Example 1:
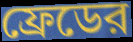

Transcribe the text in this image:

ফ্রেডের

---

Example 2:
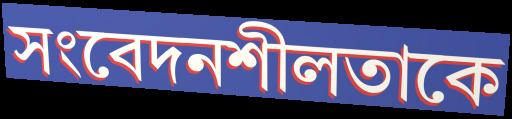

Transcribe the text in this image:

সংবেদনশীলতাকে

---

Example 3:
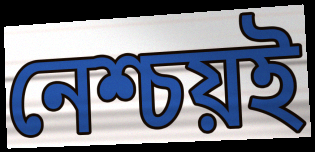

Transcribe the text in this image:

নেশ্চয়ই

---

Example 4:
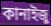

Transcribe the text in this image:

কানাইজু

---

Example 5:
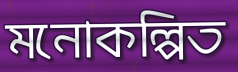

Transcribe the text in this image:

মনোকল্পিত